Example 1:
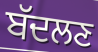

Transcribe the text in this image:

ਬੱਦਲਣ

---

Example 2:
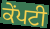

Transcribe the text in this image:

ਕੇਂਪਟੀ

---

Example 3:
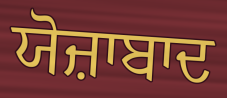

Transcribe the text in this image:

ਯੋਜ਼ਾਬਾਦ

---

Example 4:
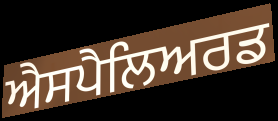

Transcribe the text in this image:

ਐਸਪੈਲਿਅਰਡ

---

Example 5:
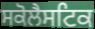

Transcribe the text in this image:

ਸਕੋਲੈਸਟਿਕ